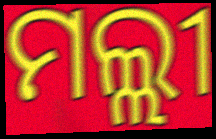
ମଲ୍ଲୀ